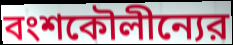
বংশকৌলীন্যের